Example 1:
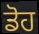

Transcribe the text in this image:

ਡੋਹ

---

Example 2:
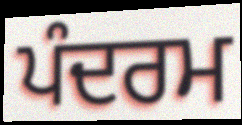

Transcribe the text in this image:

ਪੰਦਰਮ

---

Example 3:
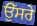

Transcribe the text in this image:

ਉੱਸਰੇ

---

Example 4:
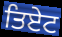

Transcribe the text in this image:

ਤਿਏਟ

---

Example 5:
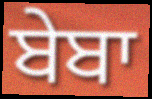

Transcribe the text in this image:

ਬੇਬਾ